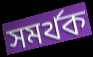
সমর্থক